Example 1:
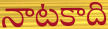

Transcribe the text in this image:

నాటకాది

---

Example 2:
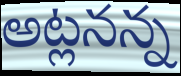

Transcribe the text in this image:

అట్లనన్న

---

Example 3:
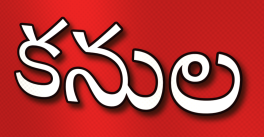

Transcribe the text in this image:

కనుల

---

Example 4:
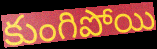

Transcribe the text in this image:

కుంగిపోయి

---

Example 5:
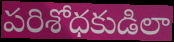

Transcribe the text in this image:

పరిశోధకుడిలా